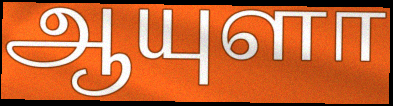
ஆயுளா